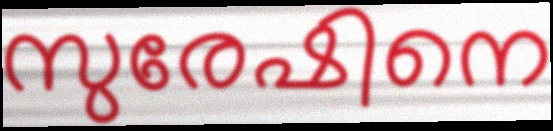
സുരേഷിനെ